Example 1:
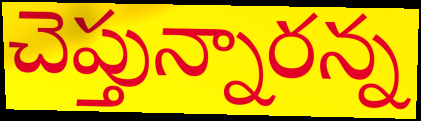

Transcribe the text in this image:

చెప్తున్నారన్న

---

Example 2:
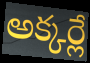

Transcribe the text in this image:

అక్కర్లే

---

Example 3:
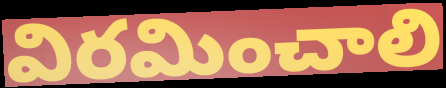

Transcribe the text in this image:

విరమించాలి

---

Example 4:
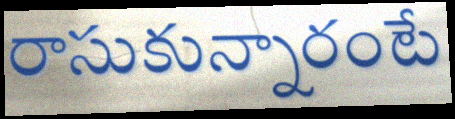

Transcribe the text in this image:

రాసుకున్నారంటే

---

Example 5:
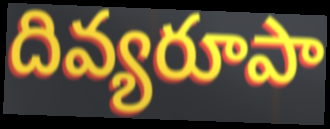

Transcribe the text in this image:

దివ్యరూపా